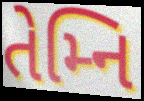
તેમ્નિ